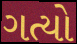
ગત્યો